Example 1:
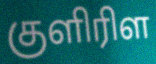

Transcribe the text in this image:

குளிரிள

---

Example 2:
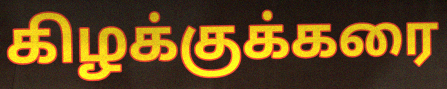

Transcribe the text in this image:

கிழக்குக்கரை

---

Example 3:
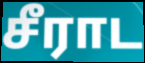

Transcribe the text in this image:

சீராட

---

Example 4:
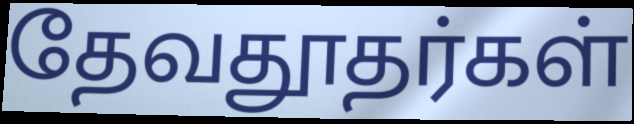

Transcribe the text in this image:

தேவதூதர்கள்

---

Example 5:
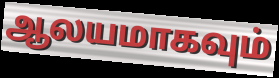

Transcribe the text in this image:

ஆலயமாகவும்